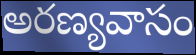
అరణ్యవాసం